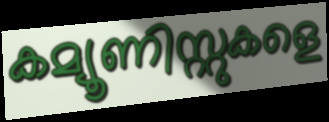
കമ്യൂണിസ്റ്റുകളെ